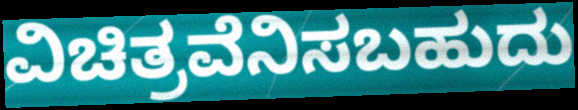
ವಿಚಿತ್ರವೆನಿಸಬಹುದು